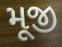
મૂજી